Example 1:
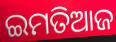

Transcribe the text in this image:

ଇମତିଆଜ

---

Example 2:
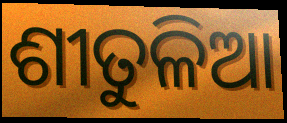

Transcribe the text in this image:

ଶୀତୁଳିଆ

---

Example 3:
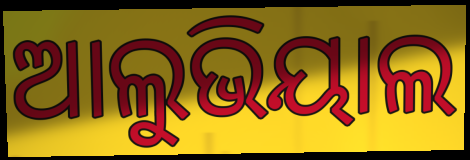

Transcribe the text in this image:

ଆଲୁଭିୟାଲ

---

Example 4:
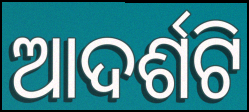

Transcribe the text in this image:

ଆଦର୍ଶଟି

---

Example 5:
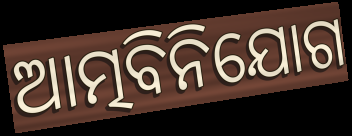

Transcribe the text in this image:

ଆତ୍ମବିନିଯୋଗ